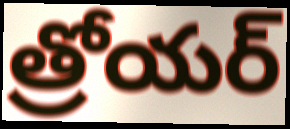
త్రోయర్